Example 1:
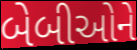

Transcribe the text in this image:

બેબીઓને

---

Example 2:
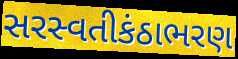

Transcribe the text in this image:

સરસ્વતીકંઠાભરણ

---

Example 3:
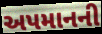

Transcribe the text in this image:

અપમાનની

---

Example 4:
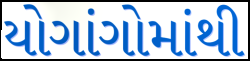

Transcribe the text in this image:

યોગાંગોમાંથી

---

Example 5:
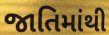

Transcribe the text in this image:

જાતિમાંથી